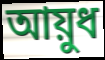
আয়ুধ